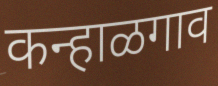
कन्हाळगाव